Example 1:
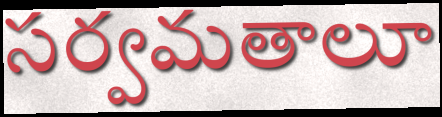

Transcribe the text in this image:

సర్వమతాలూ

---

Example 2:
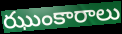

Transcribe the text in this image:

ఝుంకారాలు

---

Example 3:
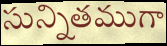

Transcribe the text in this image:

సున్నితముగా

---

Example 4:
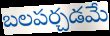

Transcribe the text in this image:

బలపర్చడమే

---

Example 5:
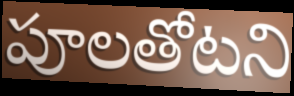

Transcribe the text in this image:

పూలతోటని